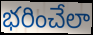
భరించేలా